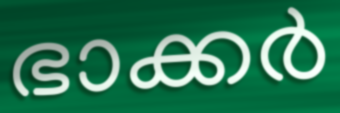
ഭാക്കർ